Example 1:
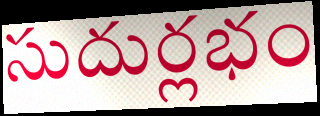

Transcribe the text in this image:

సుదుర్లభం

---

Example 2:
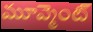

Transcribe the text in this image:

మూవ్మెంట్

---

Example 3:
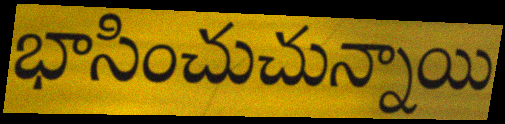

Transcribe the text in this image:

భాసించుచున్నాయి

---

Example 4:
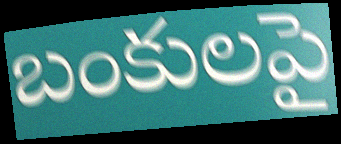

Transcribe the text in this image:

బంకులపై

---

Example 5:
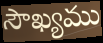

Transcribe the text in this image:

సౌఖ్యము